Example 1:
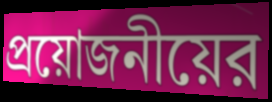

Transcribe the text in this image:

প্রয়োজনীয়ের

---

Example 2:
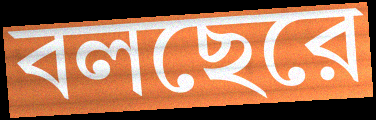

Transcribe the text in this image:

বলছেরে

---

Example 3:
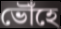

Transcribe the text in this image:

ভৌঁহে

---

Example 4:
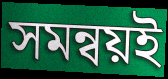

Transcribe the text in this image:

সমন্বয়ই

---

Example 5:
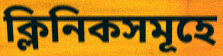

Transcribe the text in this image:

ক্লিনিকসমূহে